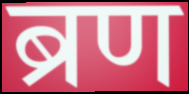
ब्रण